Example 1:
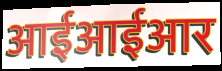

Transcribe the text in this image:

आईआईआर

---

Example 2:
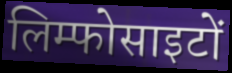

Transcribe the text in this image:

लिम्फोसाइटों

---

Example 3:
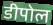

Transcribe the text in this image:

डीपोल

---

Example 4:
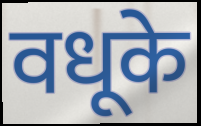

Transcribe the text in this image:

वधूके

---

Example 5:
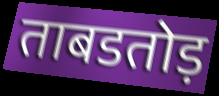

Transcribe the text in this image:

ताबडतोड़